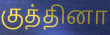
குத்தினா